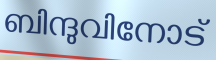
ബിന്ദുവിനോട്